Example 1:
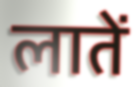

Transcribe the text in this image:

लातें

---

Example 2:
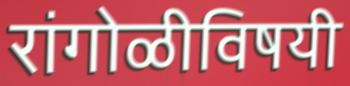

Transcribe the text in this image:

रांगोळीविषयी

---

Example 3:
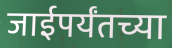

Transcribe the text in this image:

जाईपर्यंतच्या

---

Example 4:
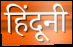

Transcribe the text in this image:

हिंदूनी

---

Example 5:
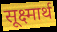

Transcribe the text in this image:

सूक्ष्मार्थ